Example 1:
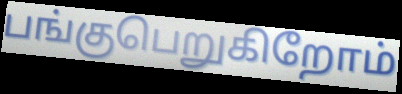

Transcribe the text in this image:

பங்குபெறுகிறோம்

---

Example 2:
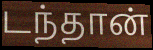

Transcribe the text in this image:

டந்தான்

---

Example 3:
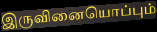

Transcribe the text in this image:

இருவினையொப்பும்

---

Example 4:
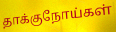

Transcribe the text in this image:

தாக்குநோய்கள்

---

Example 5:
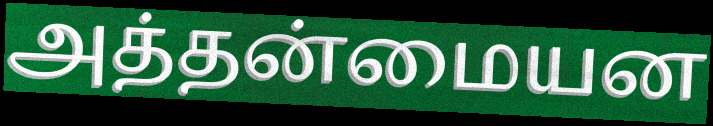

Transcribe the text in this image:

அத்தன்மையன